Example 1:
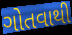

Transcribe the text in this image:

ગોતવાથી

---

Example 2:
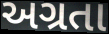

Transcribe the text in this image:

અગ્રતા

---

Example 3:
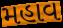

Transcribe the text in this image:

મહાવ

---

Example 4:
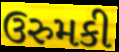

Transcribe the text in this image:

ઉરુમકી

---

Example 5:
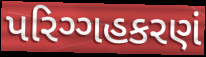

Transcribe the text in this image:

પરિગ્ગહકરણં